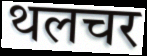
थलचर